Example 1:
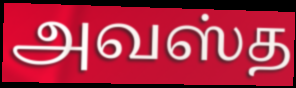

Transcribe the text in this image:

அவஸ்த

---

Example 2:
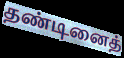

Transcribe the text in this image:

தண்டினைத்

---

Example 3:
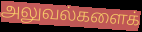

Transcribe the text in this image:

அலுவல்களைக்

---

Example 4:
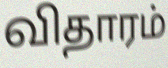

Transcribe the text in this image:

விதாரம்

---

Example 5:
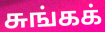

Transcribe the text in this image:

சுங்கக்